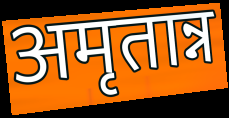
अमृतान्न